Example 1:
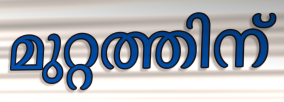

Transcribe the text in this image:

മുറ്റത്തിന്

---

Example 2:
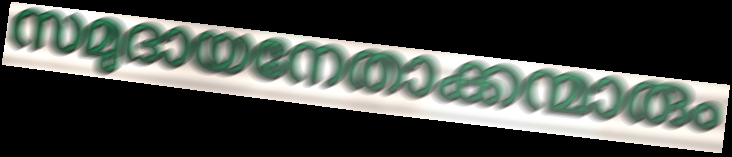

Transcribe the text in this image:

സമുദായനേതാക്കന്മാരും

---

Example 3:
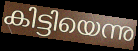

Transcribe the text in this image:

കിട്ടിയെന്നു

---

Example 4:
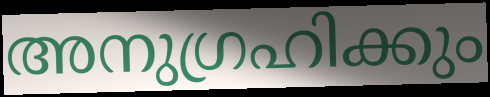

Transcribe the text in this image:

അനുഗ്രഹിക്കും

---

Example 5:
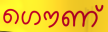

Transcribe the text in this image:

ഗൌണ്